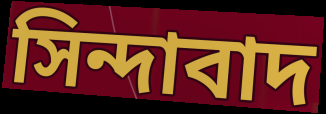
সিন্দাবাদ